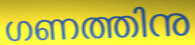
ഗണത്തിനു